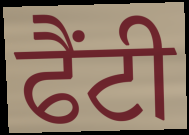
ਫੈਂਟੀ